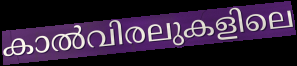
കാൽവിരലുകളിലെ